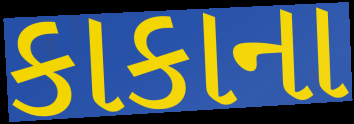
કાકાના